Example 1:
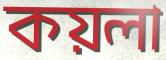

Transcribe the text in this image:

কয়লা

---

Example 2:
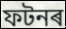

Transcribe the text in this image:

ফটনৰ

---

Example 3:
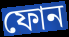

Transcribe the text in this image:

ফোন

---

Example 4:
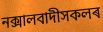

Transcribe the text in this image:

নক্সালবাদীসকলৰ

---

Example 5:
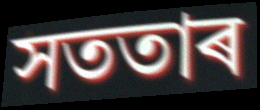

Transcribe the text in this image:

সততাৰ